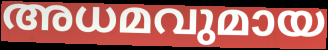
അധമവുമായ